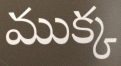
ముక్క